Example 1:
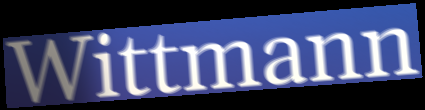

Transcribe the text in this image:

Wittmann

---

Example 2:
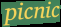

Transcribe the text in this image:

picnic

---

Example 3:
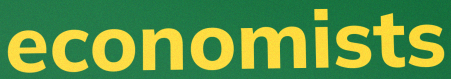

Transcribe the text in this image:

economists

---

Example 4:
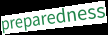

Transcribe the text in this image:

preparedness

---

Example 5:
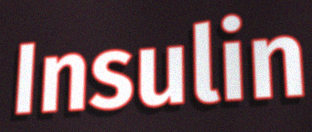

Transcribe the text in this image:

Insulin